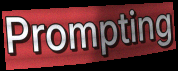
Prompting